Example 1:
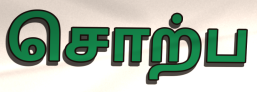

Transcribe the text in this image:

சொற்ப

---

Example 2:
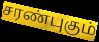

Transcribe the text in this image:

சரண்புகும்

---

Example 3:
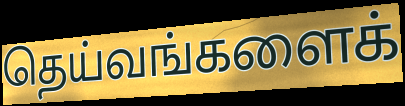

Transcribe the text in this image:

தெய்வங்களைக்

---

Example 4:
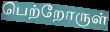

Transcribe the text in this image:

பெற்றோருள்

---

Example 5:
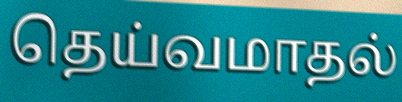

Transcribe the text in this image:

தெய்வமாதல்